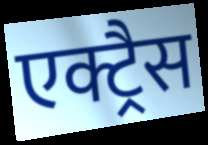
एक्ट्रैस